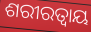
ଶରୀରତ୍ୱାୟ